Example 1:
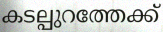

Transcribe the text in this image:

കടല്പുറത്തേക്ക്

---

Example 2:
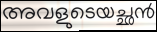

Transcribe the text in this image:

അവളുടെയച്ഛൻ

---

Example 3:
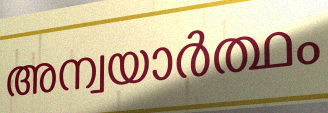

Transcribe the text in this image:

അന്വയാർത്ഥം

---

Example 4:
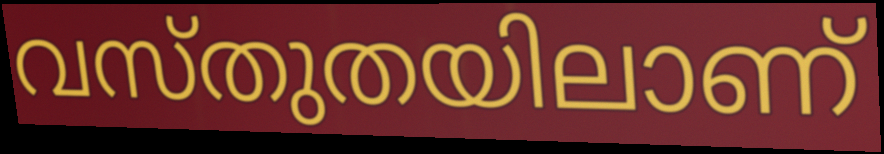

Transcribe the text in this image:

വസ്തുതയിലാണ്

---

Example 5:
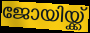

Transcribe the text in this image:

ജോയിയ്ക്ക്